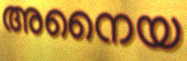
അനൈയ